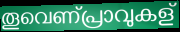
തൂവെണ്പ്രാവുകള്